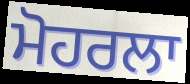
ਮੋਹਰਲਾ